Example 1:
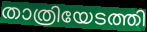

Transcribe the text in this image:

താത്രിയേടത്തി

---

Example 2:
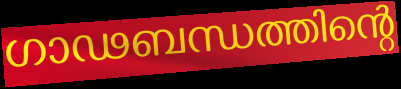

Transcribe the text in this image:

ഗാഢബന്ധത്തിന്റെ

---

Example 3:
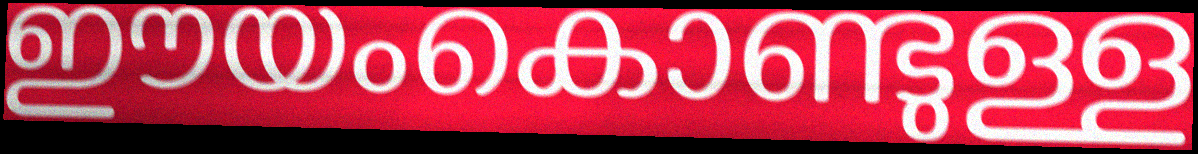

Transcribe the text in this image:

ഈയംകൊണ്ടുള്ള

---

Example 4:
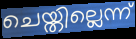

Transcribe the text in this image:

ചെയ്തില്ലെന്ന്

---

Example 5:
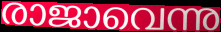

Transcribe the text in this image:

രാജാവെന്നു